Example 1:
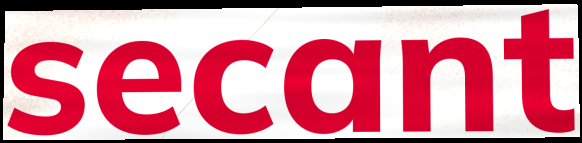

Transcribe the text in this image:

secant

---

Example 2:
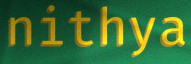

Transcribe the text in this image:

nithya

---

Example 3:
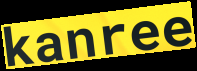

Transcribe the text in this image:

kanree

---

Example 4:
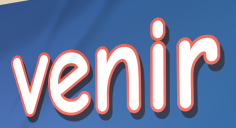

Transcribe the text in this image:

venir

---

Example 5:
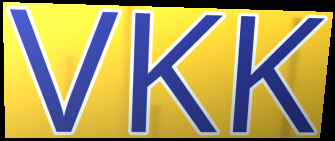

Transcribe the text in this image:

VKK